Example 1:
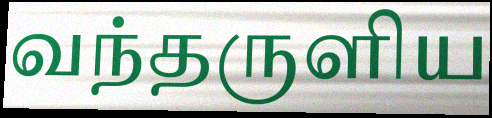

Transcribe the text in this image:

வந்தருளிய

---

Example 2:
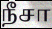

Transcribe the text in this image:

நீசா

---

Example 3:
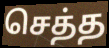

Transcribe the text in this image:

செத்த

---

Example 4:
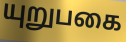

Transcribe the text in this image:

யுறுபகை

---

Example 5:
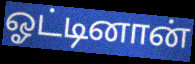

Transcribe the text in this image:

ஓட்டினான்